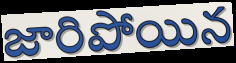
జారిపోయిన